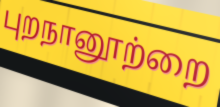
புறநானூற்றை